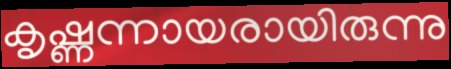
കൃഷ്ണന്നായരായിരുന്നു